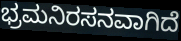
ಭ್ರಮನಿರಸನವಾಗಿದೆ